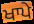
ਖਾਪੇ